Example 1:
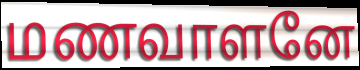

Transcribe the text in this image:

மணவாளனே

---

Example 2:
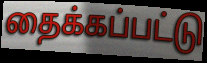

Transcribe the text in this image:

தைக்கப்பட்டு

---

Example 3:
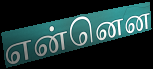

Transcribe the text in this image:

என்னென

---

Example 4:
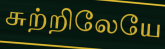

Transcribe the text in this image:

சுற்றிலேயே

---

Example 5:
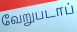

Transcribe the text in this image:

வேறுபடாப்